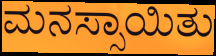
ಮನಸ್ಸಾಯಿತು